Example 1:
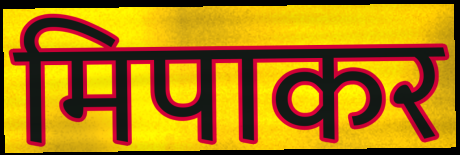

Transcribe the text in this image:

मिपाकर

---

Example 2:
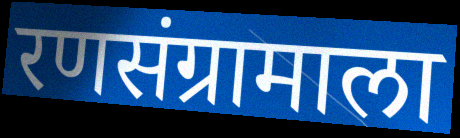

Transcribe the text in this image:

रणसंग्रामाला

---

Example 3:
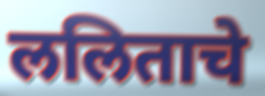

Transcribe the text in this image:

ललिताचे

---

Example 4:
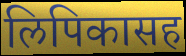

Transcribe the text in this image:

लिपिकासह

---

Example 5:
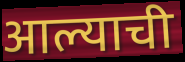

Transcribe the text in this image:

आल्याची